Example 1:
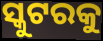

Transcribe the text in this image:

ସ୍କୁଟରକୁ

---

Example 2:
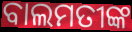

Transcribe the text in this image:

ବାଲମତୀଙ୍କ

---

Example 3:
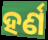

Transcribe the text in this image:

ହର୍ଣ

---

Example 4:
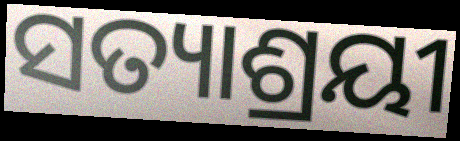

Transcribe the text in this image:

ସତ୍ୟାଶ୍ରୟୀ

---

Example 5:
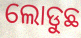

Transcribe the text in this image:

ଲୋଡୁଛ